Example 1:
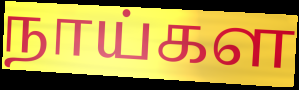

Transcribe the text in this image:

நாய்கள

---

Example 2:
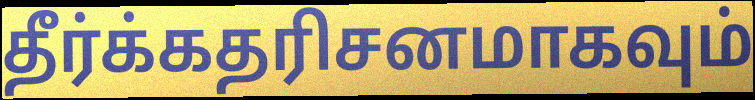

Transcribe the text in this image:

தீர்க்கதரிசனமாகவும்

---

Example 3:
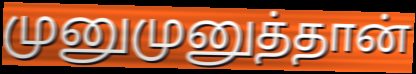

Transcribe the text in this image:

முனுமுனுத்தான்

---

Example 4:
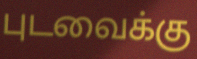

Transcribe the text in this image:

புடவைக்கு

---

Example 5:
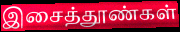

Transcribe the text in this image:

இசைத்தூண்கள்